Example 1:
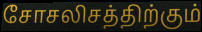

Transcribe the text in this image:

சோசலிசத்திற்கும்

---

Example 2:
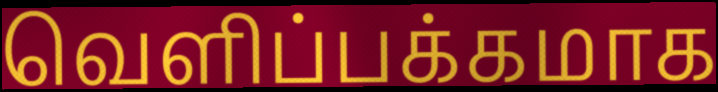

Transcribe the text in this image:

வெளிப்பக்கமாக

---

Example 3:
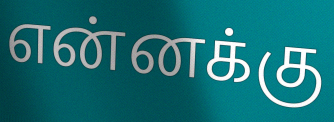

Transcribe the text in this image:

என்னக்கு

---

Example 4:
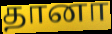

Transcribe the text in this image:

தானா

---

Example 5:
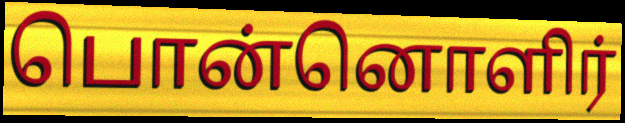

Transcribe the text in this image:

பொன்னொளிர்